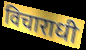
विचाराधी